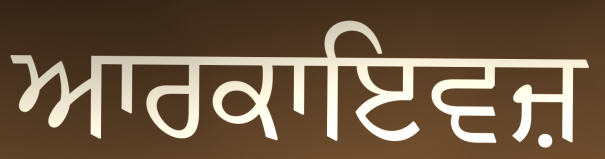
ਆਰਕਾਇਵਜ਼